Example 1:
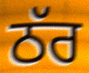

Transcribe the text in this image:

ਠੱਰ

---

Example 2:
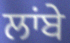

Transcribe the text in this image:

ਲਾਂਬੇ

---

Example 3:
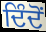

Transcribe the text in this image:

ਦਿੰਦੋਂ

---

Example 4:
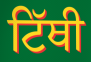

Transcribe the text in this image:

ਟਿੱਥੀ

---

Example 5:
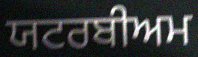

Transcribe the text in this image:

ਯਟਰਬੀਅਮ